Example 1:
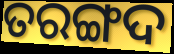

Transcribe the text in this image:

ତରଙ୍ଗଦ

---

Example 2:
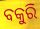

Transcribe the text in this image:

ବକୁରି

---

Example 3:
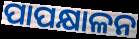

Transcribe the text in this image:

ପାପକ୍ଷାଳନ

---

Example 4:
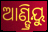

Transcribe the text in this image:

ଆଣ୍ଡ୍ରିୟୁ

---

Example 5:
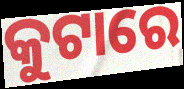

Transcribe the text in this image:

କୁଟାରେ